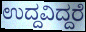
ಉದ್ದವಿದ್ದರೆ